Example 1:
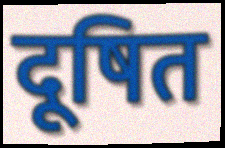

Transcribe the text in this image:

दूषित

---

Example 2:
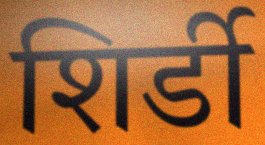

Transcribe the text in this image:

शिर्डी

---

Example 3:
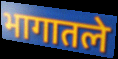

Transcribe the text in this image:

भागातले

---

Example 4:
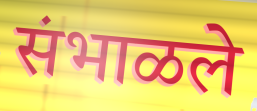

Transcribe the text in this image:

संभाळले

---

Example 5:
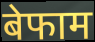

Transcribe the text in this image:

बेफाम